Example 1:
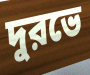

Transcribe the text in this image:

দুরভে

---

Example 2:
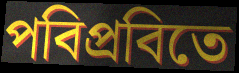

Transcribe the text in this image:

পবিপ্রবিতে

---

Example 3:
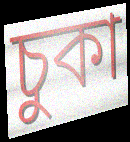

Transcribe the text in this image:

চুকা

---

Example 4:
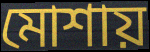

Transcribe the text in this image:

মোশায়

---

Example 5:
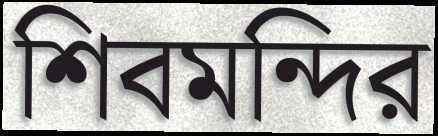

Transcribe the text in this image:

শিবমন্দির